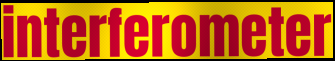
interferometer